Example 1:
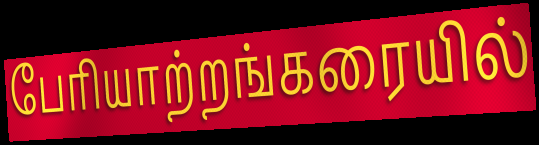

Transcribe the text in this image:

பேரியாற்றங்கரையில்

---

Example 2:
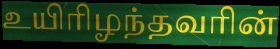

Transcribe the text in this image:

உயிரிழந்தவரின்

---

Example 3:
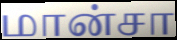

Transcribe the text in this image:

மான்சா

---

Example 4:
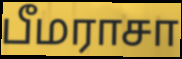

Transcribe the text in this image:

பீமராசா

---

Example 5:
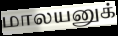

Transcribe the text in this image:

மாலயனுக்